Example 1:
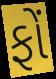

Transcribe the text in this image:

ફોં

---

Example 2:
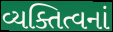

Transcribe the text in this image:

વ્યક્તિત્વનાં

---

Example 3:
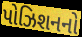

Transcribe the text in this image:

પોઝિશનનો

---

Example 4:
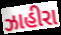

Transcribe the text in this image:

ઝાહીરા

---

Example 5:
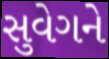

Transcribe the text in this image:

સુવેગને